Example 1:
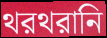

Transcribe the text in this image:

থরথরানি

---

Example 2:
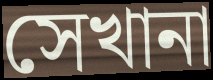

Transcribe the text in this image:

সেখানা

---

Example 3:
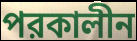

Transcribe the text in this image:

পরকালীন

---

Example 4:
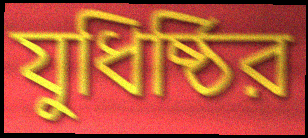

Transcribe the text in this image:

যুধিষ্ঠির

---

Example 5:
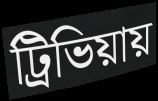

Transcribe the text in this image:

ট্রিভিয়ায়